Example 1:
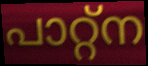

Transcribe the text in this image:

പാറ്റ്ന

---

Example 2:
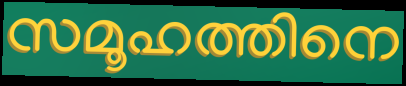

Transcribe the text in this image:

സമൂഹത്തിനെ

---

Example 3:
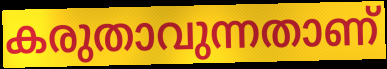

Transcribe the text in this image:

കരുതാവുന്നതാണ്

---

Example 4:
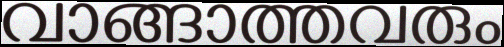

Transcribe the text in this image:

വാങ്ങാത്തവരും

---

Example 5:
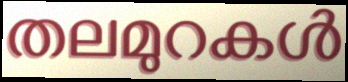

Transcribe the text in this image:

തലമുറകൾ